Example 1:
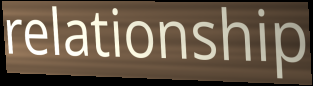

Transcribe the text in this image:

relationship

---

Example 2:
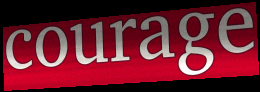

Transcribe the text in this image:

courage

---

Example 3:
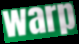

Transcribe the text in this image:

warp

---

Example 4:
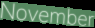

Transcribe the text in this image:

November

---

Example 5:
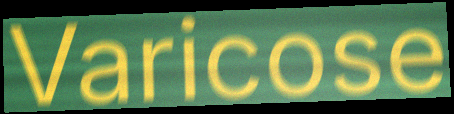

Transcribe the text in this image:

Varicose